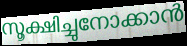
സൂക്ഷിച്ചുനോക്കാൻ